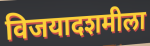
विजयादशमीला